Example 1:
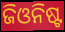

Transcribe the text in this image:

ଜିଓନିଷ୍ଟ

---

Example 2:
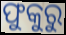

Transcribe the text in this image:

ଫୁକୁରୁ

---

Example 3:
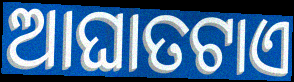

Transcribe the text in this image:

ଆଘାତଟାଏ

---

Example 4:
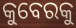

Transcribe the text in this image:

କୁବେରକୁ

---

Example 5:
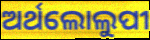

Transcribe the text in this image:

ଅର୍ଥଲୋଲୁପୀ